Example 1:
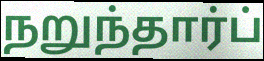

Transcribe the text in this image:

நறுந்தார்ப்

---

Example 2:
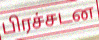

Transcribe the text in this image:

பிரச்சடன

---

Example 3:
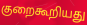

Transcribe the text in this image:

குறைகூறியது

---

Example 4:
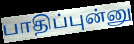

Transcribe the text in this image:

பாதிப்புன்னு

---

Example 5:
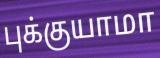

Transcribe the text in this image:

புக்குயாமா